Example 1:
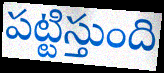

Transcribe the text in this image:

పట్టిస్తుంది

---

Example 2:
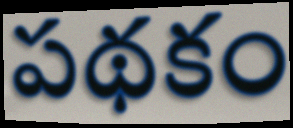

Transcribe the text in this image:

పథకం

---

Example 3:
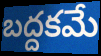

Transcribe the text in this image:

బద్దకమే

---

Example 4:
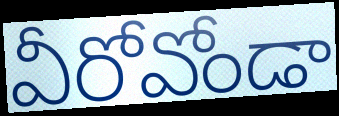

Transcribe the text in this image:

వీరోవోండా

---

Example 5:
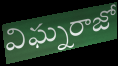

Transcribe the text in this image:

విఘ్నరాజో